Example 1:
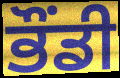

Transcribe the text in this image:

ਭੌਂਡੀ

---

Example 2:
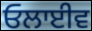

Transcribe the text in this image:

ਓਲਾਈਵ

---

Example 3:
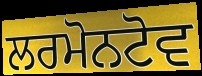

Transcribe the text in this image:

ਲਰਮੋਨਟੋਵ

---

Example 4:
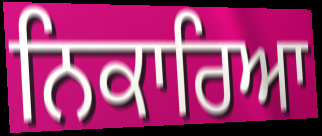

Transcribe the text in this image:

ਨਿਕਾਰਿਆ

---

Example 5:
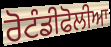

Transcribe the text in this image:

ਰੋਟੰਡੀਫੋਲੀਆ